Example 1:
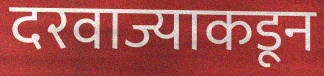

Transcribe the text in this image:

दरवाज्याकडून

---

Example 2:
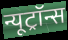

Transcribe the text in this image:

न्यूट्रॉन्स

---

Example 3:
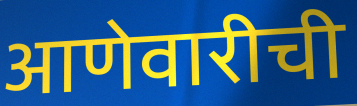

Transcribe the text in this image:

आणेवारीची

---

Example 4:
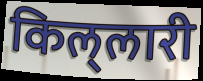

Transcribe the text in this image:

किल्लारी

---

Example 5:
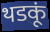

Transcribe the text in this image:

थडकूं